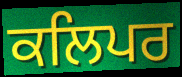
ਕਲਿਪਰ